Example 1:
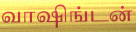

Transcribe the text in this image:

வாஷிங்டன்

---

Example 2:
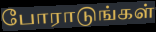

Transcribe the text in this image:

போராடுங்கள்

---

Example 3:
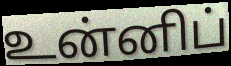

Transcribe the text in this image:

உன்னிப்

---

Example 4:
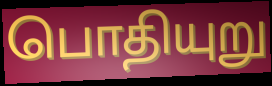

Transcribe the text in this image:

பொதியுறு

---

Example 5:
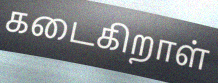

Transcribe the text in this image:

கடைகிறாள்